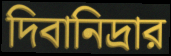
দিবানিদ্রার